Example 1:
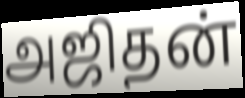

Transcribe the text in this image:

அஜிதன்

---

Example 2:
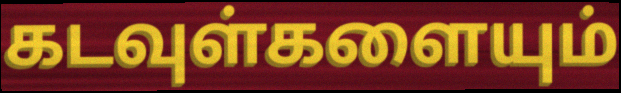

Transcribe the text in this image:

கடவுள்களையும்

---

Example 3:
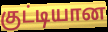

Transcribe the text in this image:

குட்டியான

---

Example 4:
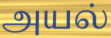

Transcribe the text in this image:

அயல்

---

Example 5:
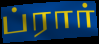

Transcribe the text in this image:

ப்ரார்